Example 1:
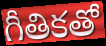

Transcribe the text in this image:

గీతికతో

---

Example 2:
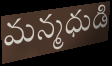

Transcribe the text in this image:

మన్మధుడి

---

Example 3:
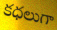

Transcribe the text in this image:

కధలుగా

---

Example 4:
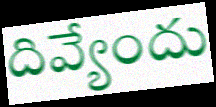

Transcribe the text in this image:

దివ్యేందు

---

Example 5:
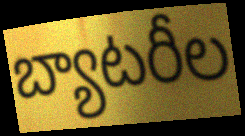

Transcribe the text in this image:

బ్యాటరీల